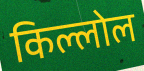
किल्लोल